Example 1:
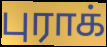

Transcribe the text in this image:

புராக்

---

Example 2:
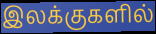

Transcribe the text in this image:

இலக்குகளில்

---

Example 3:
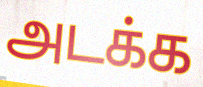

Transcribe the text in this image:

அடக்க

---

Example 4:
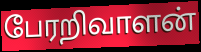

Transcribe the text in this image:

பேரறிவாளன்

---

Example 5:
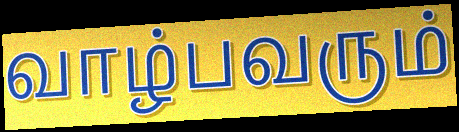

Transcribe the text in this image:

வாழ்பவரும்